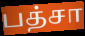
பத்சா